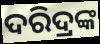
ଦରିଦ୍ରଙ୍କ